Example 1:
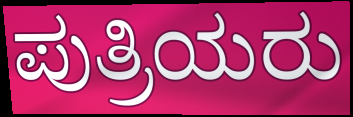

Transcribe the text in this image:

ಪುತ್ರಿಯರು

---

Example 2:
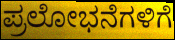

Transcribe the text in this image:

ಪ್ರಲೋಭನೆಗಳಿಗೆ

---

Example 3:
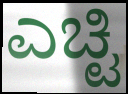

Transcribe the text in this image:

ಎಚ್ಟಿ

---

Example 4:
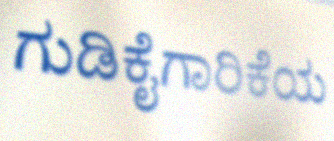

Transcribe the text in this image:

ಗುಡಿಕೈಗಾರಿಕೆಯ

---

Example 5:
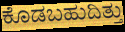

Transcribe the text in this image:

ಕೊಡಬಹುದಿತ್ತು